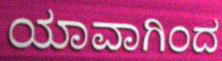
ಯಾವಾಗಿಂದ